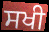
ਸਖੀ